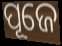
ପୂଜେ